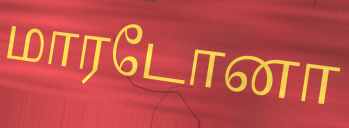
மாரடோனா